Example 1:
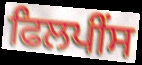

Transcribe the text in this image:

ਫਿਲਪੀਂਸ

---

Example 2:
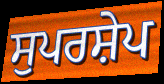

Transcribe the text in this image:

ਸੁਪਰਸ਼ੇਪ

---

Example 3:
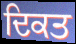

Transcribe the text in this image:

ਦਿਕਤ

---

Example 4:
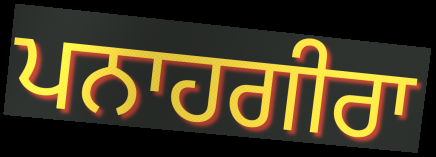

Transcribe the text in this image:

ਪਨਾਹਗੀਰਾ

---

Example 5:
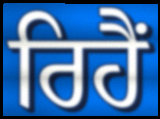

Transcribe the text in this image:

ਰਿਹੈੰ